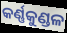
କର୍ଣ୍ଣକୁଣ୍ଡଳ